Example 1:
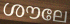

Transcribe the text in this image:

ശൗലേ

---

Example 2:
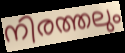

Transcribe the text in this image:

നിരത്തലും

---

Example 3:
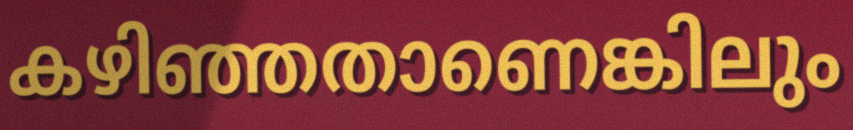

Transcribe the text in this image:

കഴിഞ്ഞതാണെങ്കിലും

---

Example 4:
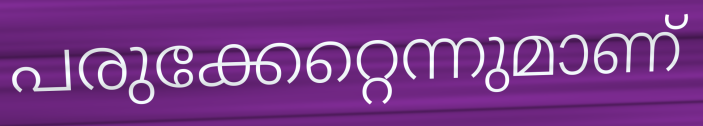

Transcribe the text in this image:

പരുക്കേറ്റെന്നുമാണ്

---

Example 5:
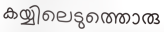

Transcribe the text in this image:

കയ്യിലെടുത്തൊരു